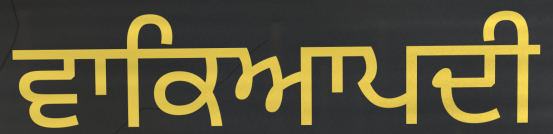
ਵਾਕਿਆਪਦੀ